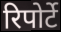
रिपोर्टे